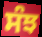
ਸੰਝ